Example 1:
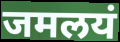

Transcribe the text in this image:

जमलयं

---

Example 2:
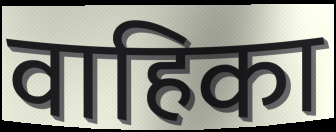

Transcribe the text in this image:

वाहिका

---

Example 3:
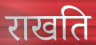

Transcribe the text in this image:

राखति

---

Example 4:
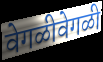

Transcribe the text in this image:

वेगळीवेगळी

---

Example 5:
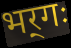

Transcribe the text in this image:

भर्गः